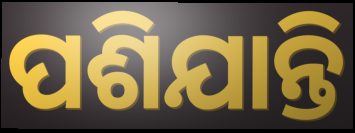
ପଶିଯାନ୍ତି